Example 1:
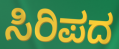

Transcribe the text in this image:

ಸಿರಿಪದ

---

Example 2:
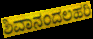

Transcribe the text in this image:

ಶಿವಾನಂದಲಹರಿ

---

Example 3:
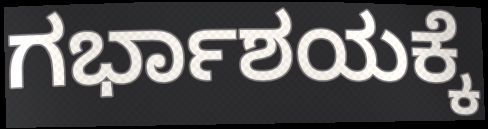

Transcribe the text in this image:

ಗರ್ಭಾಶಯಕ್ಕೆ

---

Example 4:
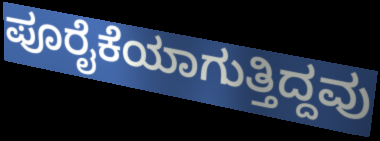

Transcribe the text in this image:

ಪೂರೈಕೆಯಾಗುತ್ತಿದ್ದವು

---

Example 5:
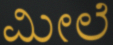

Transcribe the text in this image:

ಮೀಲೆ